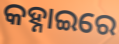
କହ୍ନାଇରେ